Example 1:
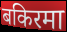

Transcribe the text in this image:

बकिरमा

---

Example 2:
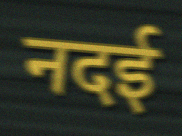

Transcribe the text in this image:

नदई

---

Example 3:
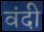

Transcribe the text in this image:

वंदी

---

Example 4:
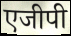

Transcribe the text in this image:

एजीपी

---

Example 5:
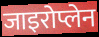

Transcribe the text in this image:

जाइरोप्लेन